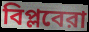
বিপ্লবেরা